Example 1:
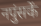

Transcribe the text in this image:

नपुंसकें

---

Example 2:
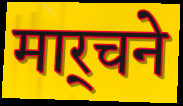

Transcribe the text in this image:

मार्चने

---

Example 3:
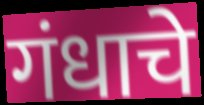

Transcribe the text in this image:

गंधाचे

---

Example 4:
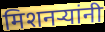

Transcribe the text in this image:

मिशनर्‍यांनी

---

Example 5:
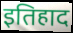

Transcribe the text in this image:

इतिहाद